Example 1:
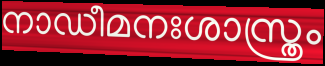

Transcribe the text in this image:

നാഡീമനഃശാസ്ത്രം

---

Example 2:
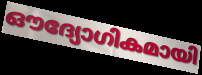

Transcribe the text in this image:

ഔദ്യോഗികമായി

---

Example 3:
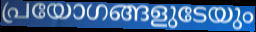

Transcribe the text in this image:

പ്രയോഗങ്ങളുടേയും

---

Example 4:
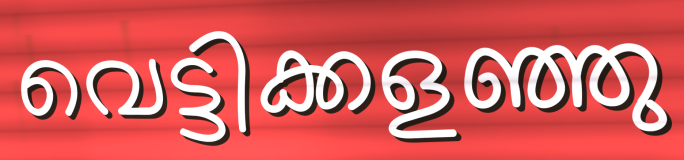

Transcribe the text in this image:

വെട്ടിക്കളഞ്ഞു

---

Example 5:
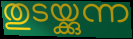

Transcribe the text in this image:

തുടയ്ക്കുന്ന